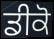
ਡੀਕੋ